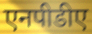
एनपीडीए